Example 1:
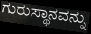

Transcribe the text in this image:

ಗುರುಸ್ಥಾನವನ್ನು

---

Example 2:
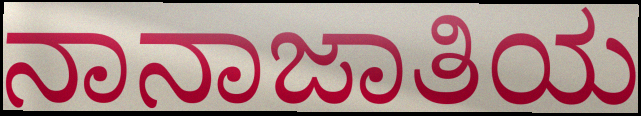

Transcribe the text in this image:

ನಾನಾಜಾತಿಯ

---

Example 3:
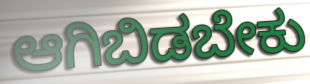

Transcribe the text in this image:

ಆಗಿಬಿಡಬೇಕು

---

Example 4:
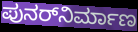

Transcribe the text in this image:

ಪುನರ್‌ನಿರ್ಮಾಣ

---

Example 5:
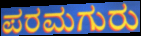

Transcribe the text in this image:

ಪರಮಗುರು